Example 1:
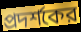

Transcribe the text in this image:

প্রদর্শকের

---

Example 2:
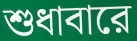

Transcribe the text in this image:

শুধাবারে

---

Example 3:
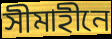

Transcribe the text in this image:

সীমাহীনে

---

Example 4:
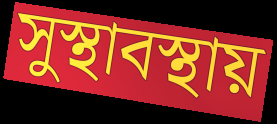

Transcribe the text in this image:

সুস্থাবস্থায়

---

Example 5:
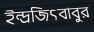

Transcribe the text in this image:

ইন্দ্রজিৎবাবুর